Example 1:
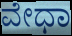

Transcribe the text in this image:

ವೇಧಾ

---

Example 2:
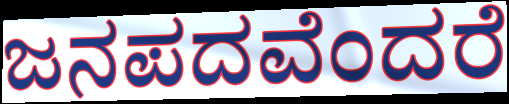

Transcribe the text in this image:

ಜನಪದವೆಂದರೆ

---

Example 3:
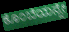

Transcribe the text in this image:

ಕೊಂಬೆಯನ್ನೇ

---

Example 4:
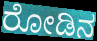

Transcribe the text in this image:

ರೋಡಿನ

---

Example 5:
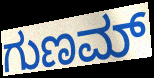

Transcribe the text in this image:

ಗುಣಮ್